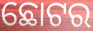
ଛୋଟର